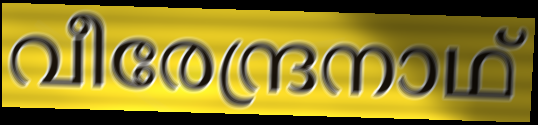
വീരേന്ദ്രനാഥ്